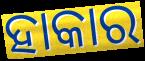
ହାକାର